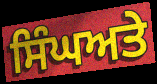
ਸਿੰਘਅਤੇ